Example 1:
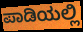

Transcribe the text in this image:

ಪಾಡಿಯಲ್ಲಿ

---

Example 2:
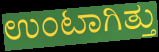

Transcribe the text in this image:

ಉಂಟಾಗಿತ್ತು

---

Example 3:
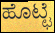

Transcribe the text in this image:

ಹೊಟ್ಟೆ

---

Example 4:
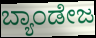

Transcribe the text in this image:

ಬ್ಯಾಂಡೇಜ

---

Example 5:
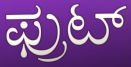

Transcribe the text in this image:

ಫ್ರುಟ್